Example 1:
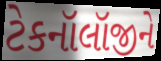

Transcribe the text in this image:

ટેકનૉલૉજીને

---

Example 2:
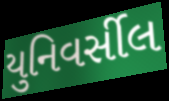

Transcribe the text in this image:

યુનિવર્સીલ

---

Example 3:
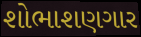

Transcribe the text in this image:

શોભાશણગાર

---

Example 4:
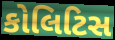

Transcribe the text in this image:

કોલિટિસ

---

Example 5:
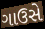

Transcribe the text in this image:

ગાઉસે